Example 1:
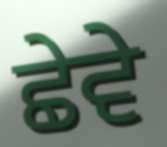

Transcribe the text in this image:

ਛੇਵੇ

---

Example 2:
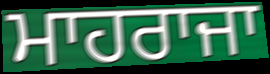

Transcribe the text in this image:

ਮਾਹਰਾਜਾ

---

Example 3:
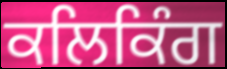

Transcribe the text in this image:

ਕਲਿਕਿੰਗ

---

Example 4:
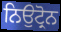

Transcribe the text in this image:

ਨਿਉਟ੍ਰੋਨ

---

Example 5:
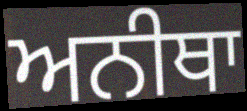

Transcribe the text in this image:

ਅਨੀਥਾ